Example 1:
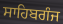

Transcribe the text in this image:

ਸਾਹਿਬਗੰਜ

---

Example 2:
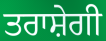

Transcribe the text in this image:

ਤਰਾਸ਼ੇਗੀ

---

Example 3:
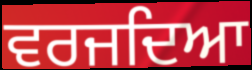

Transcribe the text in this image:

ਵਰਜਦਿਆ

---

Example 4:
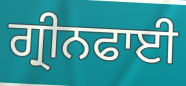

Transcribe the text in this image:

ਗ੍ਰੀਨਫਾਈ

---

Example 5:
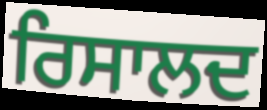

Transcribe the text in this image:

ਰਿਸਾਲਦ